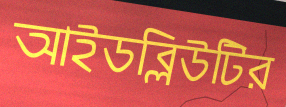
আইডব্লিউটির